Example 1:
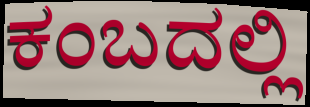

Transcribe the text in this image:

ಕಂಬದಲ್ಲಿ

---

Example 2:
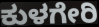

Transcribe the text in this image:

ಕುಳಗೇರಿ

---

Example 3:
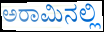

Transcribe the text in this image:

ಅರಾಮಿನಲ್ಲಿ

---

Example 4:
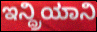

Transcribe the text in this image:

ಇನ್ದ್ರಿಯಾನಿ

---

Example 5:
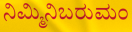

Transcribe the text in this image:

ನಿಮ್ಮಿನಿಬರುಮಂ